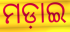
ମଡ଼ାଇ